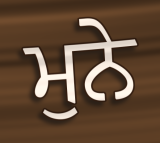
ਮੁਨੇ